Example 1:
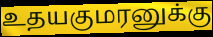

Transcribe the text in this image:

உதயகுமரனுக்கு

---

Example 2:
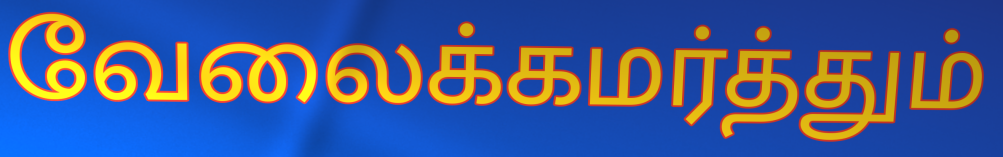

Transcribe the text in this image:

வேலைக்கமர்த்தும்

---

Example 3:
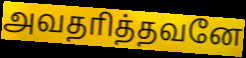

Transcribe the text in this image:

அவதரித்தவனே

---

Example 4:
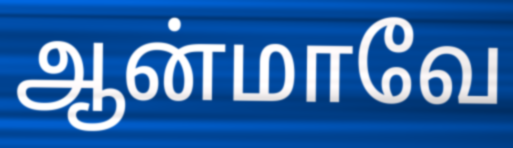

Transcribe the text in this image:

ஆன்மாவே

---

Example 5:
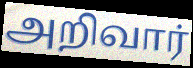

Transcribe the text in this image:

அறிவார்